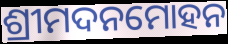
ଶ୍ରୀମଦନମୋହନ